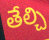
తేల్చి